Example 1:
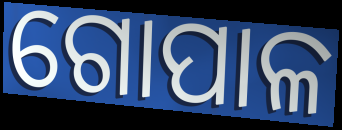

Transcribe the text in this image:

ଗୋପାଳ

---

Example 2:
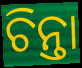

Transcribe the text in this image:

ଚିନ୍ତା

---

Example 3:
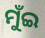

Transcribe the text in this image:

ମୁଁଇ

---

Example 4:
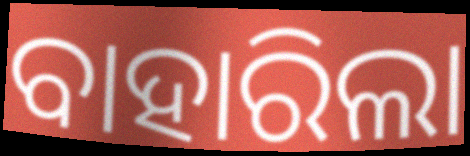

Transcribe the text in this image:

ବାହାରିଲା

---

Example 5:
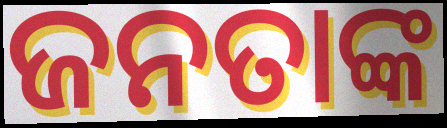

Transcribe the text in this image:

ଜନତାଙ୍କ